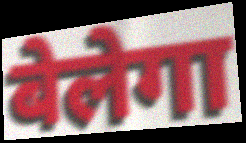
बेलेगा